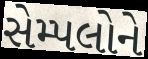
સેમ્પલોને